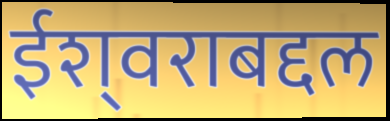
ईश्वराबद्दल